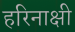
हरिनाक्षी